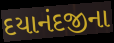
દયાનંદજીના